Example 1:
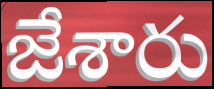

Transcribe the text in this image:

జేశారు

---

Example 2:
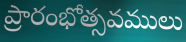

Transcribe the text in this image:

ప్రారంభోత్సవములు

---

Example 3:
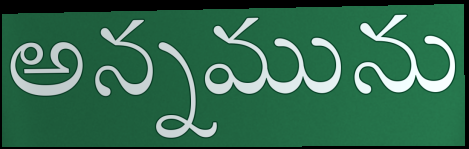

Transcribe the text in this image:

అన్నమును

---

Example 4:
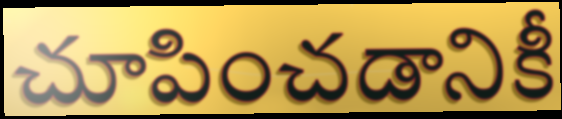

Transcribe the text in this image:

చూపించడానికీ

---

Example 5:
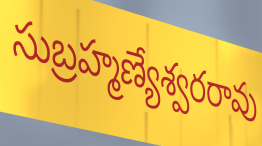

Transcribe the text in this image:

సుబ్రహ్మణ్యేశ్వరరావు